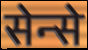
सेन्से